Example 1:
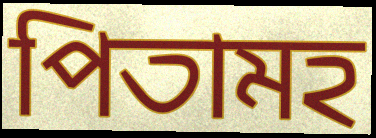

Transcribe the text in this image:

পিতামহ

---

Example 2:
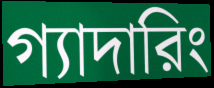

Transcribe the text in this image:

গ্যাদারিং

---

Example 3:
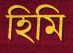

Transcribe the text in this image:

হিমি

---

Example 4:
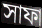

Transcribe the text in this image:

সাফা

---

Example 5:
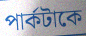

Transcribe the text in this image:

পার্কটাকে